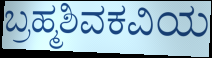
ಬ್ರಹ್ಮಶಿವಕವಿಯ